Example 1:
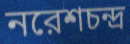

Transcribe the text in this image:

নরেশচন্দ্র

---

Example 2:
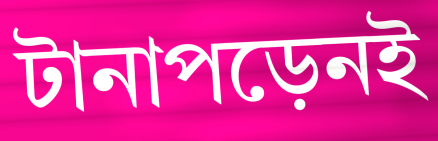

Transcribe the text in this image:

টানাপড়েনই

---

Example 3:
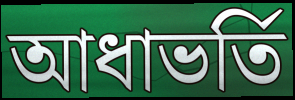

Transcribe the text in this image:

আধাভর্তি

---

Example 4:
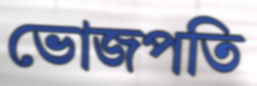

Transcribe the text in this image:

ভোজপতি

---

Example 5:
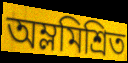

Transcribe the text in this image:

অম্লমিশ্রিত